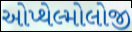
ઓપ્થેલ્મોલોજી